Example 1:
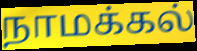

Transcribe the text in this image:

நாமக்கல்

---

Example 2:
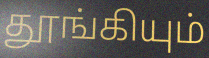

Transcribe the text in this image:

தூங்கியும்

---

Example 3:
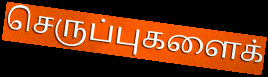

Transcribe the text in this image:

செருப்புகளைக்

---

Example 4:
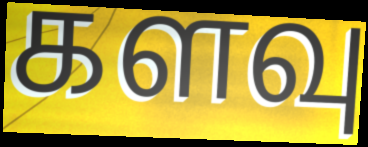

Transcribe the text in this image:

களவு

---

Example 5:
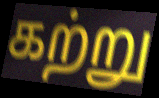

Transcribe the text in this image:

கற்று